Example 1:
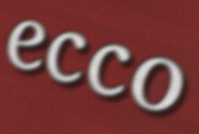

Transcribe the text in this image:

ecco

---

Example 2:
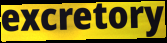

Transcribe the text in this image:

excretory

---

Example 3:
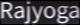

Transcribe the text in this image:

Rajyoga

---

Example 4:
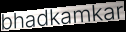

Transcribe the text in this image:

bhadkamkar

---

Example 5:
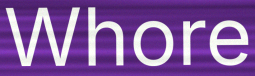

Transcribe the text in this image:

Whore